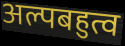
अल्पबहुत्व